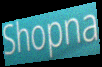
Shopna